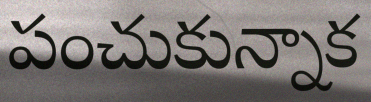
పంచుకున్నాక